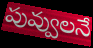
పువ్వులనే